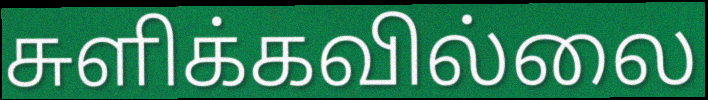
சுளிக்கவில்லை